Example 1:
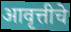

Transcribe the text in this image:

आवृत्तीचे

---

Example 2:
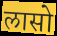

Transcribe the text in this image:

लासो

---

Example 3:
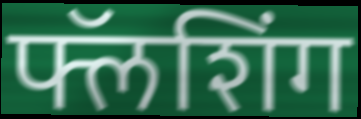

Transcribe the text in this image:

फ्लॅशिंग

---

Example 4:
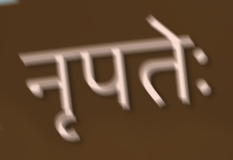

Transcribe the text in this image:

नृपतेः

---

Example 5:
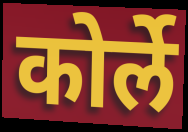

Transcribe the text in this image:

कोर्ले